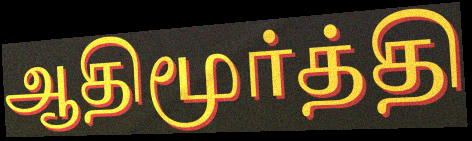
ஆதிமூர்த்தி